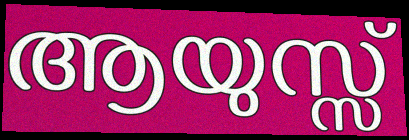
ആയുസ്സ്